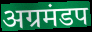
अग्रमंडप